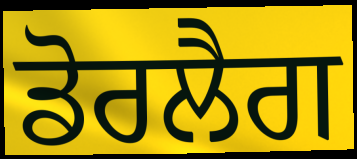
ਡੋਰਲੈਗ